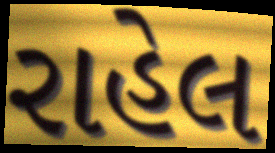
રાહેલ